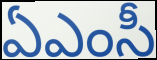
ఏఎంసీ